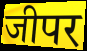
जीपर